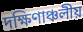
দক্ষিণাঞ্চলীয়